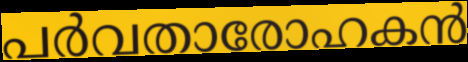
പർവതാരോഹകൻ